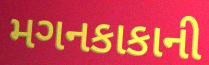
મગનકાકાની